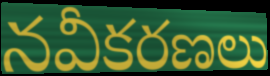
నవీకరణలు